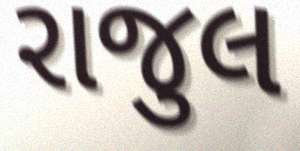
રાજુલ